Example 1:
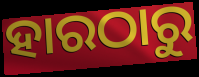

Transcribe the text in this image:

ହାରଠାରୁ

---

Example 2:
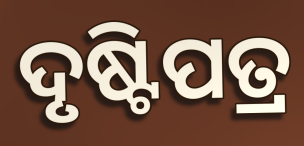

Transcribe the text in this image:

ଦୃଷ୍ଟିପତ୍ର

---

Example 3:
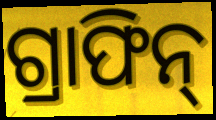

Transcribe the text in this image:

ଗ୍ରାଫିନ୍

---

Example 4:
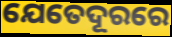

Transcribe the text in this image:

ଯେତେଦୂରରେ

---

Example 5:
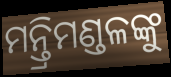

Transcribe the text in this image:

ମନ୍ତ୍ରିମଣ୍ଡଳଙ୍କୁ